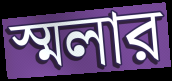
স্মলার